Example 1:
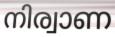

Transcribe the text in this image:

നിര്വാണ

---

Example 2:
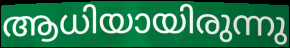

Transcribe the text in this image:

ആധിയായിരുന്നു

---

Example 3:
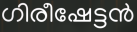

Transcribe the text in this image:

ഗിരീഷേട്ടൻ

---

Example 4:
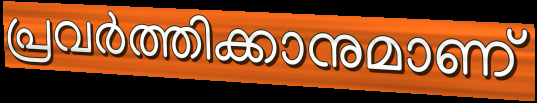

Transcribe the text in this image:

പ്രവർത്തിക്കാനുമാണ്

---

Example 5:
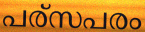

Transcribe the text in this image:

പര്സപരം